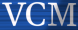
VCM